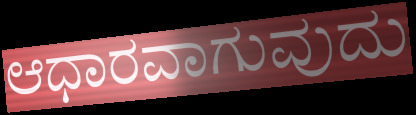
ಆಧಾರವಾಗುವುದು